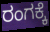
ರಂಗಕ್ಕೆ